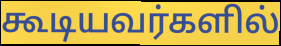
கூடியவர்களில்